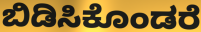
ಬಿಡಿಸಿಕೊಂಡರೆ